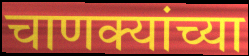
चाणक्यांच्या